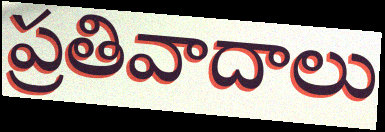
ప్రతివాదాలు